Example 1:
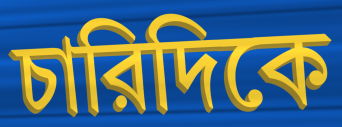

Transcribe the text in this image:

চারিদিকে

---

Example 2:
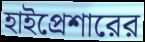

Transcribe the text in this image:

হাইপ্রেশারের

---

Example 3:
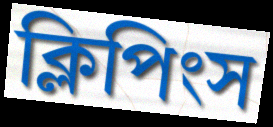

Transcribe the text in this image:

ক্লিপিংস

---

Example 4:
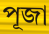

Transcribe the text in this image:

পূজা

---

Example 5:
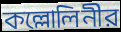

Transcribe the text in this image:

কল্লোলিনীর